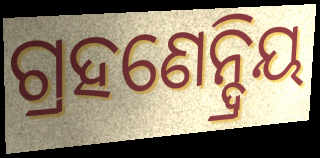
ଗ୍ରହଣେନ୍ଦ୍ରିୟ